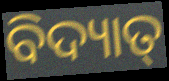
ବିଦ୍ୟାତ୍